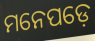
ମନେପଡ଼େ